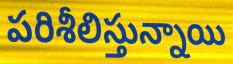
పరిశీలిస్తున్నాయి